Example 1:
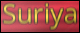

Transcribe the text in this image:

Suriya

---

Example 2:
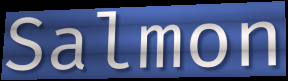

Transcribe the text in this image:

Salmon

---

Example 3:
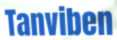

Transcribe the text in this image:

Tanviben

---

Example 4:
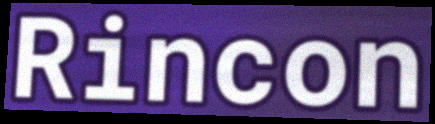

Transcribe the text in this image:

Rincon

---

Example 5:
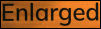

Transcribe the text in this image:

Enlarged